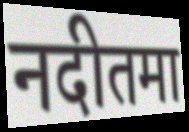
नदीतमा